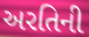
અરતિની